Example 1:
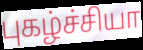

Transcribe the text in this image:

புகழ்ச்சியா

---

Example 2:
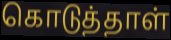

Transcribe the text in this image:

கொடுத்தாள்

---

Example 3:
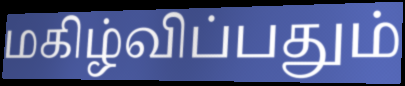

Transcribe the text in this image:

மகிழ்விப்பதும்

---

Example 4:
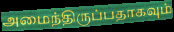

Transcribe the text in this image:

அமைந்திருப்பதாகவும்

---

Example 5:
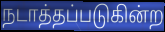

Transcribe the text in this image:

நடாத்தப்படுகின்ற